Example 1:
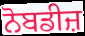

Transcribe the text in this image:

ਨੋਬਡੀਜ਼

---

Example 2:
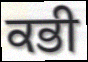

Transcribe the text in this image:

ਕਭੀ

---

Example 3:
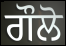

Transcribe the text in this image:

ਗੌਲੋ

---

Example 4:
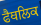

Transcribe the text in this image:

ਫੈਥਲਿਕ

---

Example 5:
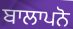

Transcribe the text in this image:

ਬਾਲਾਪਨੋ